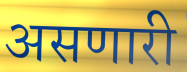
असणारी